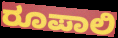
ರೂಪಾಲಿ